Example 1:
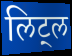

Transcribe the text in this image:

लिट्‌ल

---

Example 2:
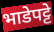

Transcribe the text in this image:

भाडेपट्टे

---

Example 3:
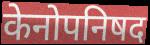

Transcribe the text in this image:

केनोपनिषद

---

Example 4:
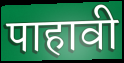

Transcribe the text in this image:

पाहावी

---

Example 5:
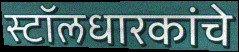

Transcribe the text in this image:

स्टॉलधारकांचे